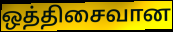
ஒத்திசைவான